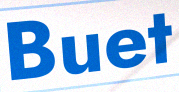
Buet